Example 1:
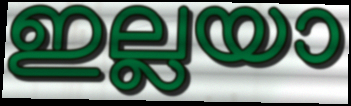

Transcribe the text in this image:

ഇല്ലയാ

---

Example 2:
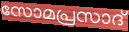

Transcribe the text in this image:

സോമപ്രസാദ്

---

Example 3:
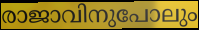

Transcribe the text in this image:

രാജാവിനുപോലും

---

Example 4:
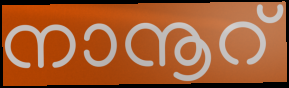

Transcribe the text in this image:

നാനൂറ്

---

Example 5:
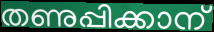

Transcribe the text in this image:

തണുപ്പിക്കാന്